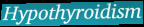
Hypothyroidism